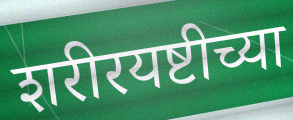
शरीरयष्टीच्या